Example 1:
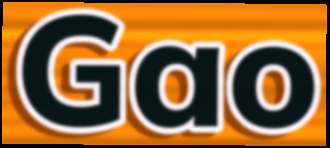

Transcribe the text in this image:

Gao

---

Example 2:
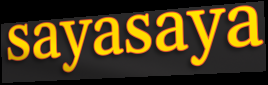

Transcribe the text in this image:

sayasaya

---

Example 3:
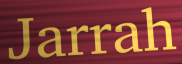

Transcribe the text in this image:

Jarrah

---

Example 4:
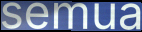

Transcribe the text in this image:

semua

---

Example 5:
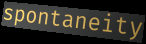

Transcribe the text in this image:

spontaneity